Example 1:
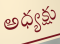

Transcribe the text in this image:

అధ్యక్షు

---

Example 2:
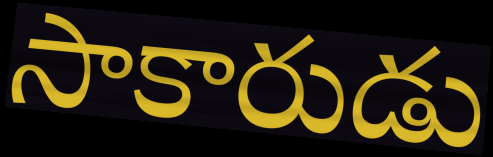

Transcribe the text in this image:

సాకారుడు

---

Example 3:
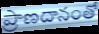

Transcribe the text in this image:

ప్రాణదానంతో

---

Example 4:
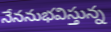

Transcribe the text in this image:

నేననుభవిస్తున్న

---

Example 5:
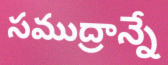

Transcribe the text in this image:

సముద్రాన్నే